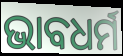
ଭାବଧର୍ମ